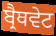
ਬ੍ਰੈਥਵੇਟ